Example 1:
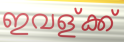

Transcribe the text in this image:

ഇവള്ക്ക്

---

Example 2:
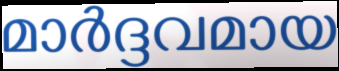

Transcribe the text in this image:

മാർദ്ദവമായ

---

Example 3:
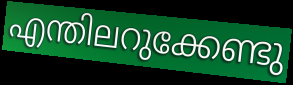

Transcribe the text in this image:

എന്തിലറുക്കേണ്ടു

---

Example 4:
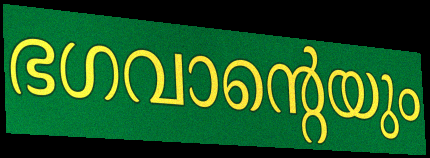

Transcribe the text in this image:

ഭഗവാന്റെയും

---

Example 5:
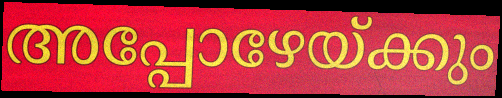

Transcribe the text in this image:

അപ്പോഴേയ്ക്കും